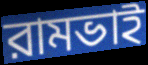
রামভাই